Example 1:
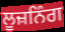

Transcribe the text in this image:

ਲੂਜ਼ਨਿੰਗ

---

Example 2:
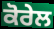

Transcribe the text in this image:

ਕੋਰੇਲ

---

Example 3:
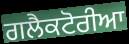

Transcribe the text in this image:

ਗਲੈਕਟੋਰੀਆ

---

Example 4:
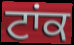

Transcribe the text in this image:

ਟਾਂਕ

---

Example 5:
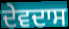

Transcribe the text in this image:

ਦੇਵਦਾਸ